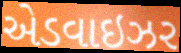
એડવાઇઝર